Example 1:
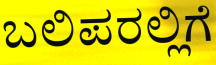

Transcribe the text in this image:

ಬಲಿಪರಲ್ಲಿಗೆ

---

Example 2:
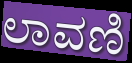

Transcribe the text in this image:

ಲಾವಣಿ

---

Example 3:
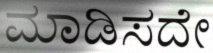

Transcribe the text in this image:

ಮಾಡಿಸದೇ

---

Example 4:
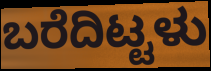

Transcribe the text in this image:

ಬರೆದಿಟ್ಟಳು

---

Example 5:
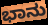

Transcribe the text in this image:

ಭಾನು